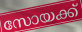
സോയക്ക്